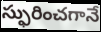
స్ఫురించగానే